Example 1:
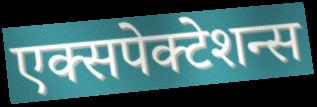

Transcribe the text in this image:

एक्सपेक्टेशन्स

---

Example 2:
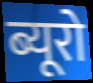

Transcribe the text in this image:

ब्‍यूरो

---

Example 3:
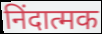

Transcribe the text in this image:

निंदात्मक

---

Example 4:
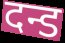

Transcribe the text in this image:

दन्ड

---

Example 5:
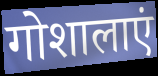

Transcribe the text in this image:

गोशालाएं